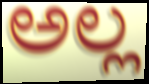
ಅಲ್ಲ